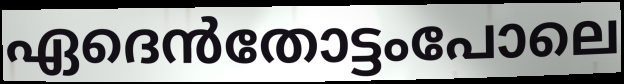
ഏദെൻതോട്ടംപോലെ